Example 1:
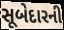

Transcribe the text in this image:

સૂબેદારની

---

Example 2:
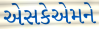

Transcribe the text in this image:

એસકેએમને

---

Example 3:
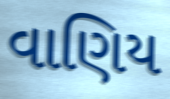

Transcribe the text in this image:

વાણિય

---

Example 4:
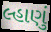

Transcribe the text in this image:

લ્હાણું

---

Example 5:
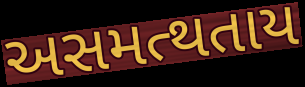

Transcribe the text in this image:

અસમત્થતાય